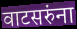
वाटसरुंना